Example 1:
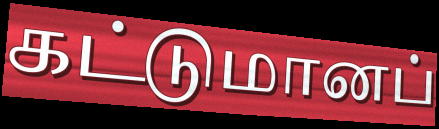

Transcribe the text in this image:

கட்டுமானப்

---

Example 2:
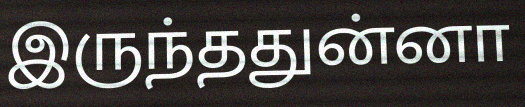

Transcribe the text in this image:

இருந்ததுன்னா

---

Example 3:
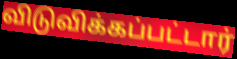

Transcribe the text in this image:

விடுவிக்கப்பட்டார்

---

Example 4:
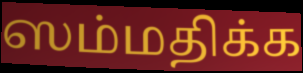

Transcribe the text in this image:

ஸம்மதிக்க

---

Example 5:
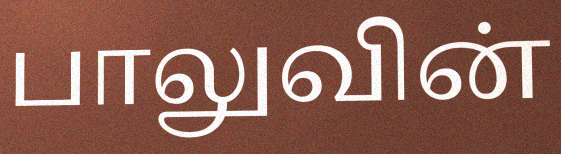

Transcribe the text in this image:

பாலுவின்